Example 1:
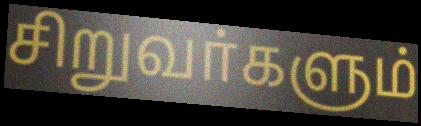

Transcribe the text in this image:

சிறுவர்களும்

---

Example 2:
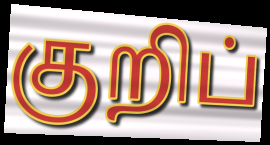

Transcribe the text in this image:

குறிப்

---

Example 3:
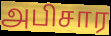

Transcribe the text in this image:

அபிசார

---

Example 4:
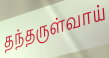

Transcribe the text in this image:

தந்தருள்வாய்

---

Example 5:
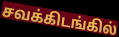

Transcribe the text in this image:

சவக்கிடங்கில்